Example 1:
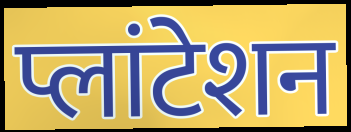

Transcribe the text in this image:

प्लांटेशन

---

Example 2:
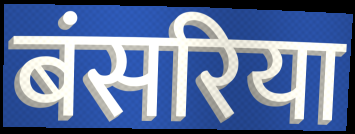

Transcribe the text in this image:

बंसरिया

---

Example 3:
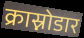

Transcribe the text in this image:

क्रास्नोडार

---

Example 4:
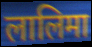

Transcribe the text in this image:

लालिमा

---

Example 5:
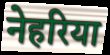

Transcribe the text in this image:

नेहरिया